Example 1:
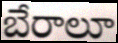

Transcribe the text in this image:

బేరాలూ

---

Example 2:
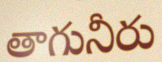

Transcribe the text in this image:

తాగునీరు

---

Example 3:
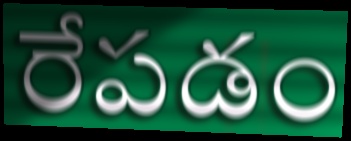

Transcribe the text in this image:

రేపడం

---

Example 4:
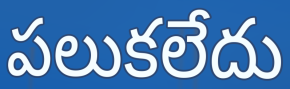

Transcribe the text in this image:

పలుకలేదు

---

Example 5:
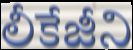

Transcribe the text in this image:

లీకేజీని